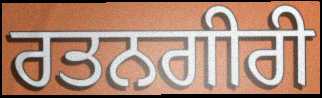
ਰਤਨਗੀਰੀ